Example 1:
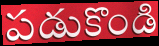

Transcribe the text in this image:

పడుకొండి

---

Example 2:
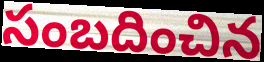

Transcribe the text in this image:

సంబదించిన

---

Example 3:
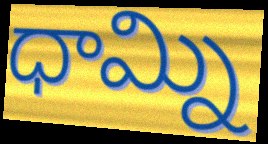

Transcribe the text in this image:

ధామ్ని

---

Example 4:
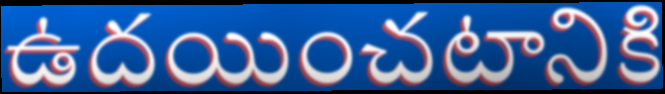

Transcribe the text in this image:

ఉదయించటానికి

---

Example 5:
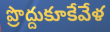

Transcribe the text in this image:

ప్రొద్దుకూకేవేళ